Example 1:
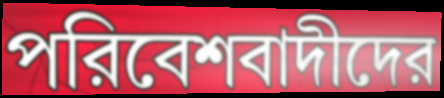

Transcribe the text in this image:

পরিবেশবাদীদের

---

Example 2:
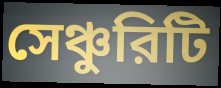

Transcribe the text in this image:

সেঞ্চুরিটি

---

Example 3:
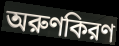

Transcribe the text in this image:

অরুণকিরণ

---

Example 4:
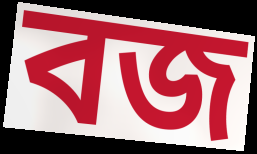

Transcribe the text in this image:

বজ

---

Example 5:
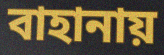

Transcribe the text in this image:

বাহানায়